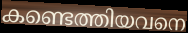
കണ്ടെത്തിയവനെ